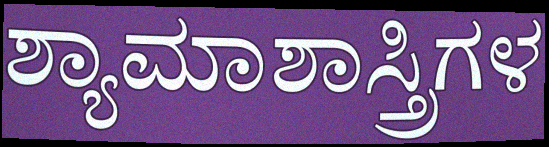
ಶ್ಯಾಮಾಶಾಸ್ತ್ರಿಗಳ